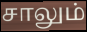
சாலும்